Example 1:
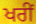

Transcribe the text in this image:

ਖਰੀਂ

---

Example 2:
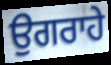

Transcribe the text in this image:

ਉਗਰਾਹੇ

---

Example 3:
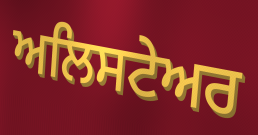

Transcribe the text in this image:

ਅਲਿਸਟੇਅਰ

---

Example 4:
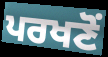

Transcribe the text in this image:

ਪਰਖਣੋਂ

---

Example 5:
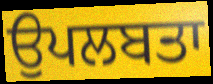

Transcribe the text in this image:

ਉਪਲਬਤਾ